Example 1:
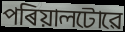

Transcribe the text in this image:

পৰিয়ালটোৱে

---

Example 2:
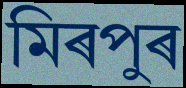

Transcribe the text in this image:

মিৰপুৰ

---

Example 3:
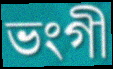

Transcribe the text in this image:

ভংগী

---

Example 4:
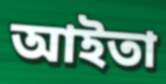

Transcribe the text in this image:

আইতা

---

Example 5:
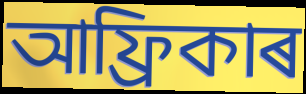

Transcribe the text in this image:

আফ্ৰিকাৰ